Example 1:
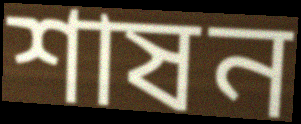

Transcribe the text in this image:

শাষন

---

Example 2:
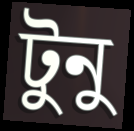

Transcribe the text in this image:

টুনু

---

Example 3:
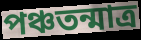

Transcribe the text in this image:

পঞ্চতন্মাত্র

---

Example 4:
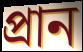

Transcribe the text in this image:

প্রান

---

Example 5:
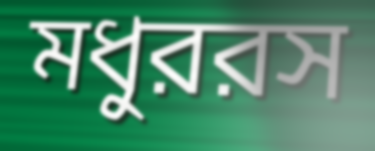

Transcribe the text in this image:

মধুররস